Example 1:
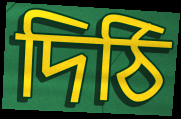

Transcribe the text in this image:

দিঠি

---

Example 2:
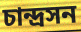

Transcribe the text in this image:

চান্দ্রসন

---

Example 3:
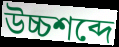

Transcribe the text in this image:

উচ্চশব্দে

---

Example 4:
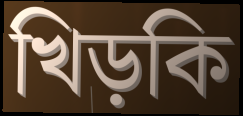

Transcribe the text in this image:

খিড়কি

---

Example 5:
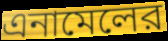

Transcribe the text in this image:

এনামেলের